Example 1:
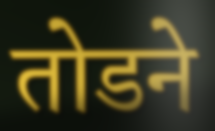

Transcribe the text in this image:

तोडने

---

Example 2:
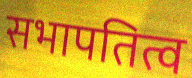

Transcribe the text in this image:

सभापतित्व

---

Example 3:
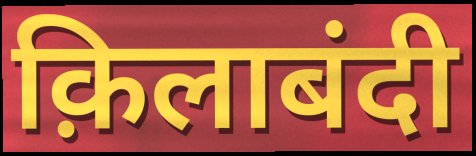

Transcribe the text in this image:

क़िलाबंदी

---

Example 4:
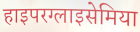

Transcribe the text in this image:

हाइपरग्लाइसेमिया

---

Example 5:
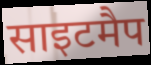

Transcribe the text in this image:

साइटमैप